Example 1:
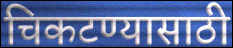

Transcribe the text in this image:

चिकटण्यासाठी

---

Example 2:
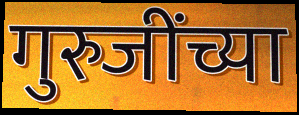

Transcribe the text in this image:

गुरुजींच्या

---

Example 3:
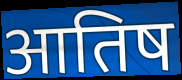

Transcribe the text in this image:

आतिष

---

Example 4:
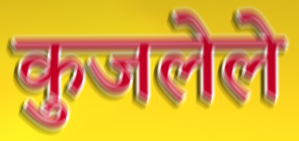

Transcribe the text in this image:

कुजलेले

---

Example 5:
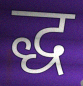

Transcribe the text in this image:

द्ध